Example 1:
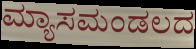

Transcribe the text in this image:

ಮ್ಯಾಸಮಂಡಲದ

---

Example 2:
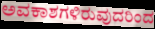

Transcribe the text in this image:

ಅವಕಾಶಗಳಿರುವುದರಿಂದ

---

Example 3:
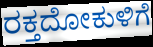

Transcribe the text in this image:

ರಕ್ತದೋಕುಳಿಗೆ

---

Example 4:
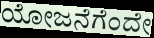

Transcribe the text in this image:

ಯೋಜನೆಗೆಂದೇ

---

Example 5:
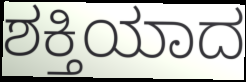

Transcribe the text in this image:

ಶಕ್ತಿಯಾದ